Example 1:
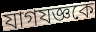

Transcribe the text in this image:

যাগযজ্ঞকে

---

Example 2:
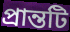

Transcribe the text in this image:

প্রান্তটি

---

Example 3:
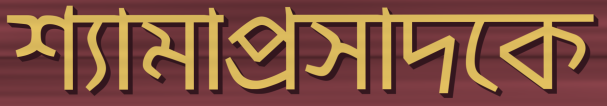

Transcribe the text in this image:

শ্যামাপ্রসাদকে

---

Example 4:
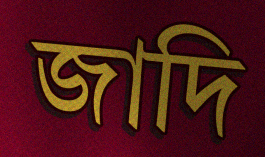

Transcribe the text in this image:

জাদি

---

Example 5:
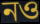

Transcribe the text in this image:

নও